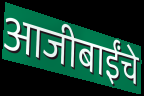
आजीबाईंचे